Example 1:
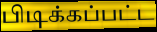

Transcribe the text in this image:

பிடிக்கப்பட்ட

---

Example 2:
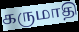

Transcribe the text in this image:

கருமாதி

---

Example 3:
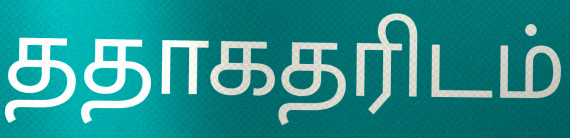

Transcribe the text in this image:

ததாகதரிடம்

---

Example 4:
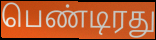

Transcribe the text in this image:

பெண்டிரது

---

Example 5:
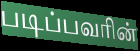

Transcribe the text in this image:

படிப்பவரின்